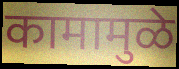
कामामुळे